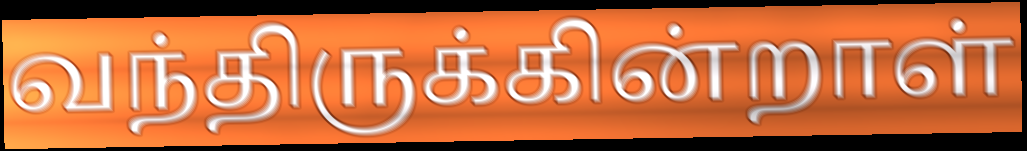
வந்திருக்கின்றாள்